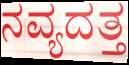
ನವ್ಯದತ್ತ